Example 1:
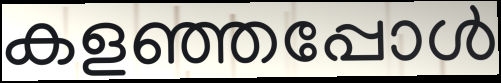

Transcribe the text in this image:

കളഞ്ഞപ്പോൾ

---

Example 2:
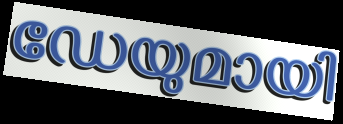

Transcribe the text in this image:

ഡേയുമായി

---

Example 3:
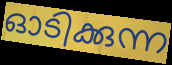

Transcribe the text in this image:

ഓടിക്കുന്ന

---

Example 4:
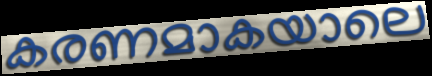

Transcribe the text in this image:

കരണമാകയാലെ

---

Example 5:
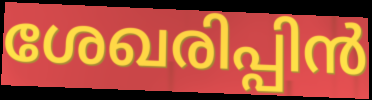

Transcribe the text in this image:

ശേഖരിപ്പിൻ